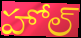
హోల్